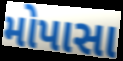
મોપાસા